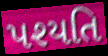
પશ્યતિ